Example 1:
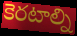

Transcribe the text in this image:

కెరటాల్ని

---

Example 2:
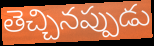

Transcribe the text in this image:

తెచ్చినప్పుడు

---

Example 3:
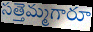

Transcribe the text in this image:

సత్తెమ్మగారూ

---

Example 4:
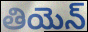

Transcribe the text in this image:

తియెన్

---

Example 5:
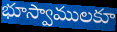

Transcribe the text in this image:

భూస్వాములకూ